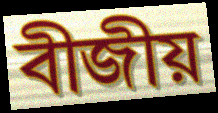
বীজীয়